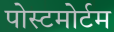
पोस्टमोर्टम